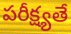
పరీక్ష్యతే